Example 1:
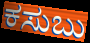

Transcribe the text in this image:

ಕಸುಬು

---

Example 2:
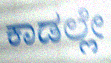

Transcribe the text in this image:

ಕಾಡಲ್ಲೇ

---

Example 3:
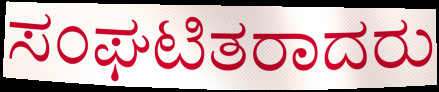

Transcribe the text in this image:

ಸಂಘಟಿತರಾದರು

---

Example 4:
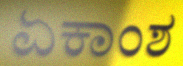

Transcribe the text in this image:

ಏಕಾಂಶ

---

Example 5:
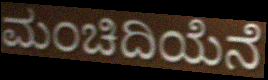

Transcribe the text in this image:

ಮಂಚಿದಿಯೆನೆ